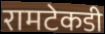
रामटेकडी